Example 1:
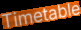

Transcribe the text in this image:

Timetable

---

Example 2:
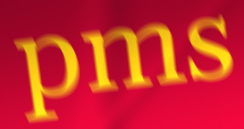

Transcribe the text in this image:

pms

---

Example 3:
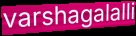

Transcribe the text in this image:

varshagalalli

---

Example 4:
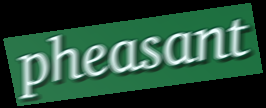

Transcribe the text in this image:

pheasant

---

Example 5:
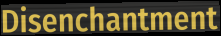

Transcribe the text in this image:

Disenchantment